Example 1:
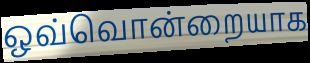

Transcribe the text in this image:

ஒவ்வொன்றையாக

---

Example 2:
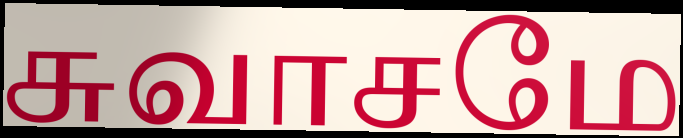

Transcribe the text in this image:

சுவாசமே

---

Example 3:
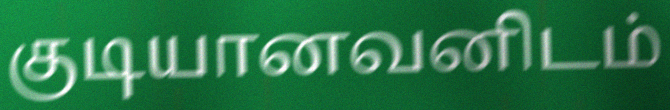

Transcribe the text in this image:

குடியானவனிடம்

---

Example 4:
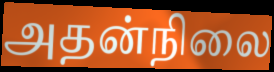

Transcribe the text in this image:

அதன்நிலை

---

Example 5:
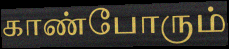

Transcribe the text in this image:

காண்போரும்